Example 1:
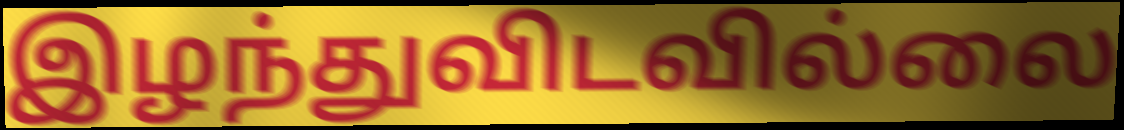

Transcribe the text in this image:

இழந்துவிடவில்லை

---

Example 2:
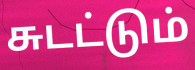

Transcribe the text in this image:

சுடட்டும்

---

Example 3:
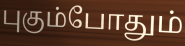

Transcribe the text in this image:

புகும்போதும்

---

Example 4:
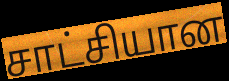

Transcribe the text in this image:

சாட்சியான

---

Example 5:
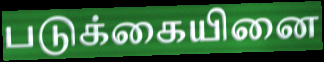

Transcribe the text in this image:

படுக்கையினை